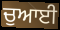
ਚੁਆਈ